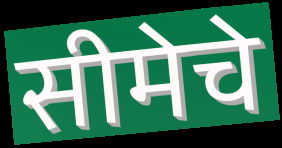
सीमेचे